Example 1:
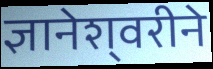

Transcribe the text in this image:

ज्ञानेश्वरीने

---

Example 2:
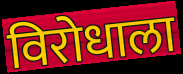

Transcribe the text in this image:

विरोधाला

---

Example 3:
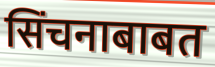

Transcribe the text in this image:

सिंचनाबाबत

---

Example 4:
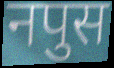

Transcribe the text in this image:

नपुस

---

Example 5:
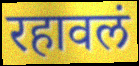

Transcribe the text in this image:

रहावलं